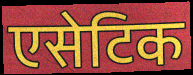
एसेटिक